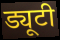
ड्यूटी